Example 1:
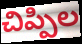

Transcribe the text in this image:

చిప్పిల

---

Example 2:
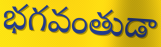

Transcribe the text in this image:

భగవంతుడా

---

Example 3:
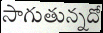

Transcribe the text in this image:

సాగుతున్నదో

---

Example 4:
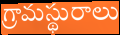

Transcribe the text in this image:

గ్రామస్థురాలు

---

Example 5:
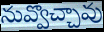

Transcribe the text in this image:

నువ్వొచ్చావు